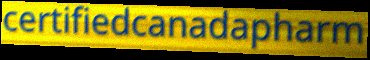
certifiedcanadapharm